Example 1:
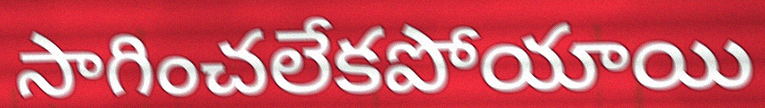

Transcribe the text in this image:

సాగించలేకపోయాయి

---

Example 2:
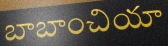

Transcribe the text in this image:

బాబాంచియా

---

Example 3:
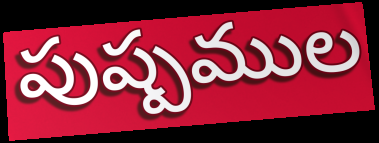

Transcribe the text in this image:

పుష్పముల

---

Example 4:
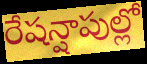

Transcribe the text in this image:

రేషన్షాపుల్లో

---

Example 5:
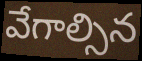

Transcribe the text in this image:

వేగాల్సిన